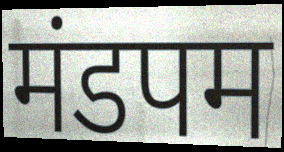
मंडपम